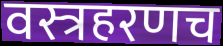
वस्त्रहरणच